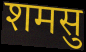
शमसु